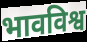
भावविश्व